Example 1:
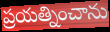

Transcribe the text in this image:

ప్రయత్నించాను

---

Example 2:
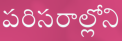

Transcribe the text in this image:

పరిసరాల్లోని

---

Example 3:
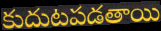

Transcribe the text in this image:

కుదుటపడతాయి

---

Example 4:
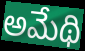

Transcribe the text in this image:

అమేథి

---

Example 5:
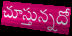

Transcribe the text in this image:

చూస్తున్నదో